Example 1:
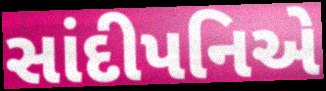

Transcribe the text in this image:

સાંદીપનિએ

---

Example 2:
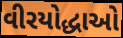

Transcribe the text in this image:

વીરયોદ્ધાઓ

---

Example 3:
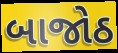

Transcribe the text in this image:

બાજોઠ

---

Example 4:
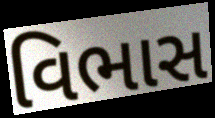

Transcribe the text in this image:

વિભાસ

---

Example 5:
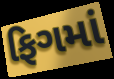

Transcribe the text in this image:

ફિગમાં